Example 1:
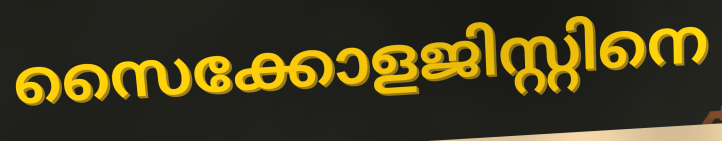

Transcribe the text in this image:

സൈക്കോളജിസ്റ്റിനെ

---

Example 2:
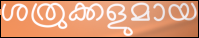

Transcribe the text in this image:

ശത്രുക്കളുമായ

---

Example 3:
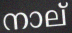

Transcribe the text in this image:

നാല്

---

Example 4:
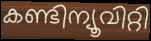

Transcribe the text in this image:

കണ്ടിന്യൂവിറ്റി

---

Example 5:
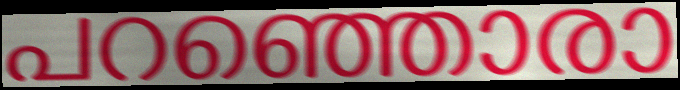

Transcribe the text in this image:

പറഞ്ഞൊരാ